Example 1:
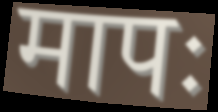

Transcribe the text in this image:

मापः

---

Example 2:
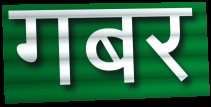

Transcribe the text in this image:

गबर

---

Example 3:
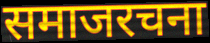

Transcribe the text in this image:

समाजरचना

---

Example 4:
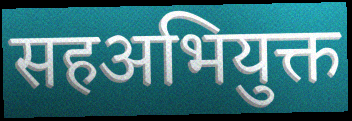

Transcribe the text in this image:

सहअभियुक्त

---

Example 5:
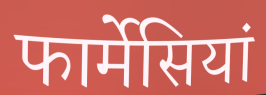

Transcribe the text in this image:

फार्मेसियां